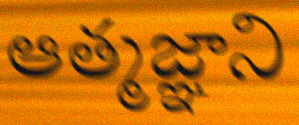
ఆత్మజ్ఞాని